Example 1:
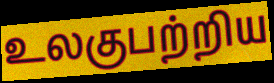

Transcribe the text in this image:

உலகுபற்றிய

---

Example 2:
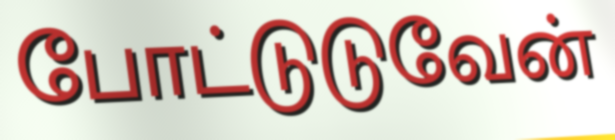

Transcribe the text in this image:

போட்டுடுவேன்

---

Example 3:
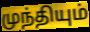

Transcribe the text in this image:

முந்தியும்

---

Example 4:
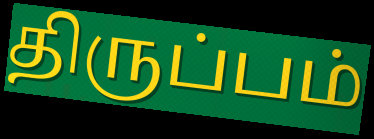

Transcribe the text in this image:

திருப்பம்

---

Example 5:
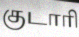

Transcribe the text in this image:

குடாரி